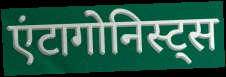
एंटागोनिस्ट्स